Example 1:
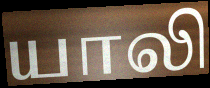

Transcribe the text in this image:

யாலி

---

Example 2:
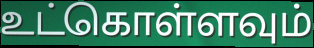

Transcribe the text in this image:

உட்கொள்ளவும்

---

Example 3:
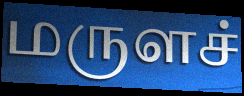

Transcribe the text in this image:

மருளச்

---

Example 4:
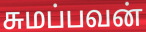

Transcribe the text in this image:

சுமப்பவன்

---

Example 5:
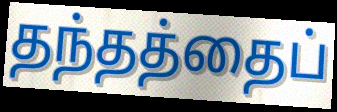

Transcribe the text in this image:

தந்தத்தைப்